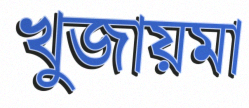
খুজায়মা